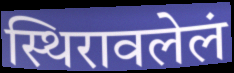
स्थिरावलेलं